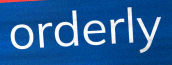
orderly